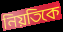
নিয়তিকে